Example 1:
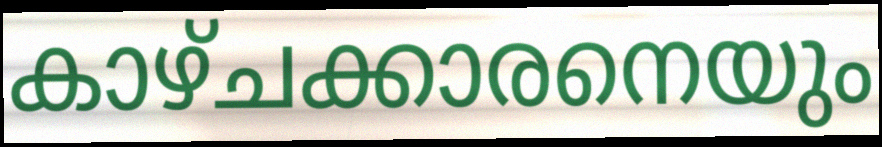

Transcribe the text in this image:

കാഴ്ചക്കാരനെയും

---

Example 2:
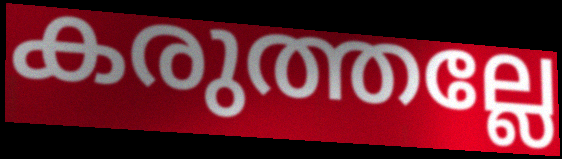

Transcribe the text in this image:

കരുത്തല്ലേ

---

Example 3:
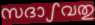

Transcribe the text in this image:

സദാഽവതു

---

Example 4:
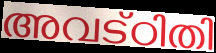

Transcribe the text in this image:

അവട്ഠിതി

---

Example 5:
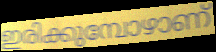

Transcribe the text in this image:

ഇരിക്കുമ്പോഴാണ്